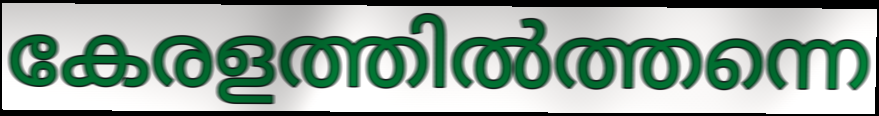
കേരളത്തിൽത്തന്നെ